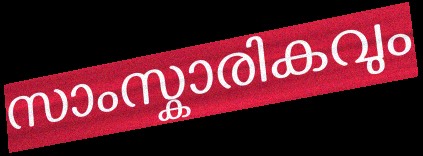
സാംസ്കാരികവും